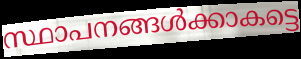
സ്ഥാപനങ്ങൾക്കാകട്ടെ